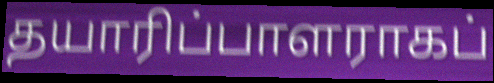
தயாரிப்பாளராகப்